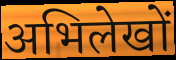
अभिलेखों